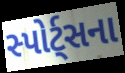
સ્પોર્ટ્સના